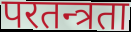
परतन्त्रता